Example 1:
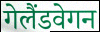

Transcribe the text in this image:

गेलैंडवेगन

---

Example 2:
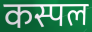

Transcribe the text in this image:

कस्पल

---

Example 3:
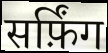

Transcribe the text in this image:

सर्फ़िंग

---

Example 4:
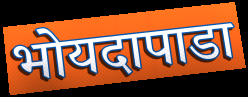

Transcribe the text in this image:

भोयदापाडा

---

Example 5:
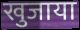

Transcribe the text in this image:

खुजाया